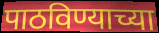
पाठविण्याच्या